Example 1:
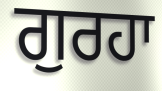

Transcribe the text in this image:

ਗੁਰਹਾ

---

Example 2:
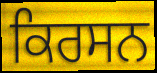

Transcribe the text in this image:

ਕਿਰਸਨ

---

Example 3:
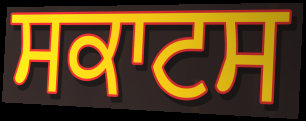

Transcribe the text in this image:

ਸਕਾਟਸ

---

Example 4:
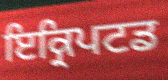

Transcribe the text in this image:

ਇਕ੍ਰਿਪਟਡ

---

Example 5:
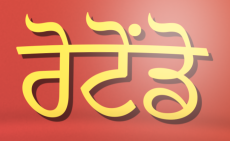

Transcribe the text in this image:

ਰੋਟੋਂਡੋ